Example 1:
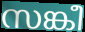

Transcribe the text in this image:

സങ്കീ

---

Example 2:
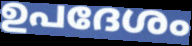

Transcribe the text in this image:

ഉപദേശം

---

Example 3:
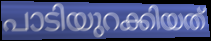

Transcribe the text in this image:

പാടിയുറക്കിയത്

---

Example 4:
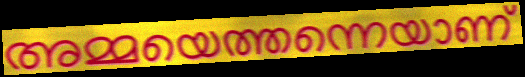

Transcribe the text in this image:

അമ്മയെത്തന്നെയാണ്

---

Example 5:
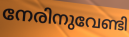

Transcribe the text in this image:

നേരിനുവേണ്ടി